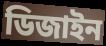
ডিজাইন